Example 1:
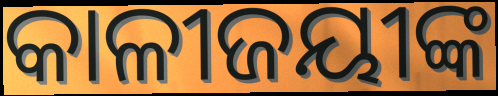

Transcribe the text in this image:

କାଳୀଜୟୀଙ୍କ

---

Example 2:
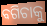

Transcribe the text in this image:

ବଗିଚାକୁ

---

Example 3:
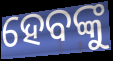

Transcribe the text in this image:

ହେବଙ୍କୁ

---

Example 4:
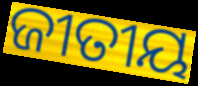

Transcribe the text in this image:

ଜୀତୀୟ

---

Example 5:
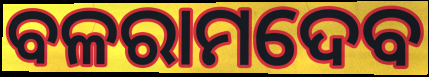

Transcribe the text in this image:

ବଳରାମଦେବ